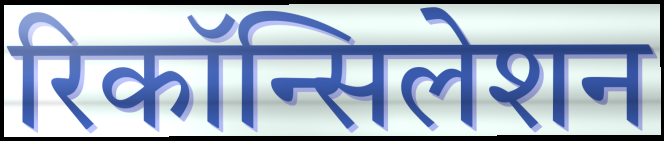
रिकॉन्सिलेशन